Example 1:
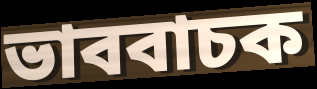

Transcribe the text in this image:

ভাববাচক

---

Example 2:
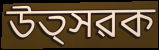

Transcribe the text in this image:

উত্সৱক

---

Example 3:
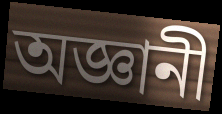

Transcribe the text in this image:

অজ্ঞানী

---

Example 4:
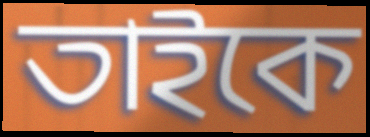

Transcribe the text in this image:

তাইকে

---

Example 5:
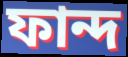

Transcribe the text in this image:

ফান্দ